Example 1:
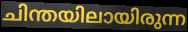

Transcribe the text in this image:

ചിന്തയിലായിരുന്ന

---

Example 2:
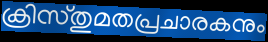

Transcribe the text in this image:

ക്രിസ്തുമതപ്രചാരകനും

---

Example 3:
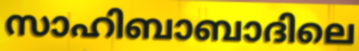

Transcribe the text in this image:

സാഹിബാബാദിലെ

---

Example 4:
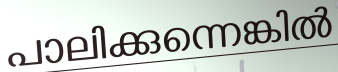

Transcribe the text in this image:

പാലിക്കുന്നെങ്കിൽ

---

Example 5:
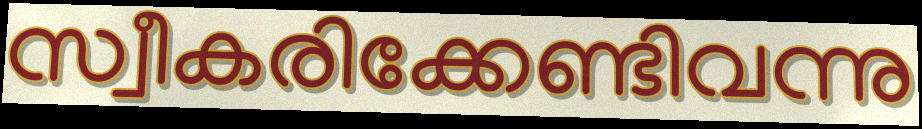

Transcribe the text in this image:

സ്വീകരിക്കേണ്ടിവന്നു